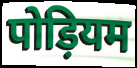
पोड़ियम